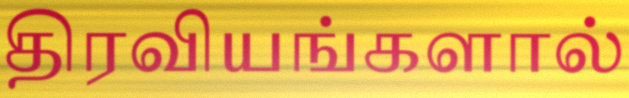
திரவியங்களால்